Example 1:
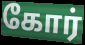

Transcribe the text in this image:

கோர்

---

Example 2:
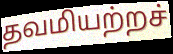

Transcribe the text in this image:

தவமியற்றச்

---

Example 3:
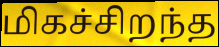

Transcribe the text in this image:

மிகச்சிறந்த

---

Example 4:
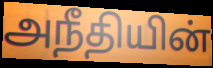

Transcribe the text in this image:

அநீதியின்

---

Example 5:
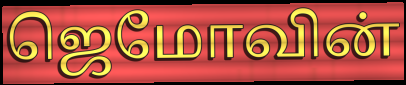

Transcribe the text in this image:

ஜெமோவின்